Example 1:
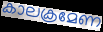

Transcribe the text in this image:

കാലക്രമേണ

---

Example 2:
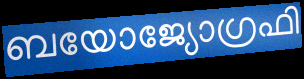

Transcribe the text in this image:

ബയോജ്യോഗ്രഫി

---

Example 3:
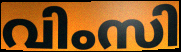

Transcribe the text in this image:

വിംസി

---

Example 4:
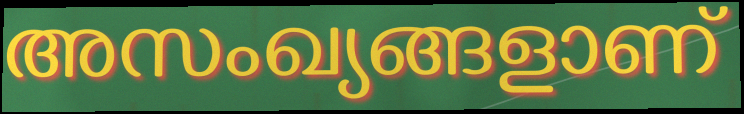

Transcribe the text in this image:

അസംഖ്യങ്ങളാണ്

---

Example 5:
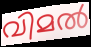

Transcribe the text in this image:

വിമൽ